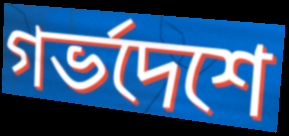
গর্ভদেশে